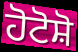
ਹੋਟੋਸ਼ੋ